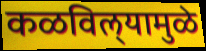
कळविल्यामुळे